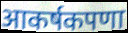
आकर्षकपणा